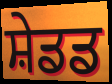
ਸ਼ੇਡਡ